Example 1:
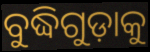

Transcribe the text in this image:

ବୁଦ୍ଧିଗୁଡ଼ାକୁ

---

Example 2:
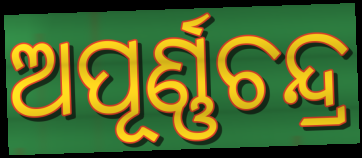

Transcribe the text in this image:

ଅପୂର୍ଣ୍ଣଚନ୍ଦ୍ର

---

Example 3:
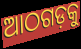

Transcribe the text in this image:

ଆଠଗଡ଼କୁ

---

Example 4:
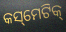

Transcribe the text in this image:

କସ୍‌ମେଟିକ୍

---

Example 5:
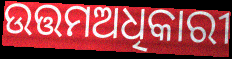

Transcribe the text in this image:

ଉତ୍ତମଅଧିକାରୀ